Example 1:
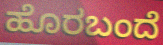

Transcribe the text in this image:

ಹೊರಬಂದೆ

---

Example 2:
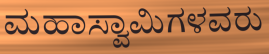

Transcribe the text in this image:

ಮಹಾಸ್ವಾಮಿಗಳವರು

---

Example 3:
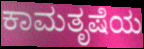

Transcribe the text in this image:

ಕಾಮತೃಷೆಯ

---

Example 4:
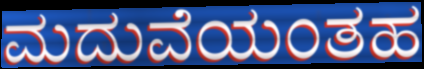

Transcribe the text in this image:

ಮದುವೆಯಂತಹ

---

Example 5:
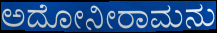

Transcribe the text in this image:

ಅದೋನೀರಾಮನು